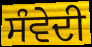
ਸੰਵੇਦੀ